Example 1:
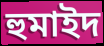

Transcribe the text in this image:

হুমাইদ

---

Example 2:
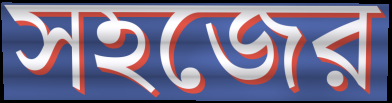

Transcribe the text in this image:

সহজের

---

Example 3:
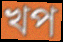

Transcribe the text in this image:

খপ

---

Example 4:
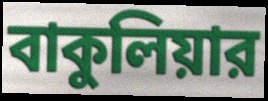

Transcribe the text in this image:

বাকুলিয়ার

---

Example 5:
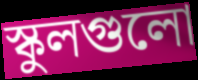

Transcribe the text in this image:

স্কুলগুলো